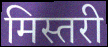
मिस्तरी